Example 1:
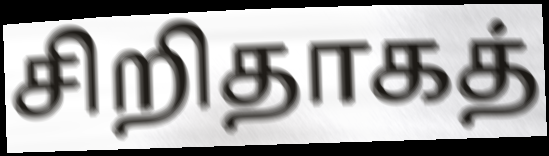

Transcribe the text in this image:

சிறிதாகத்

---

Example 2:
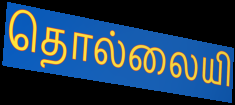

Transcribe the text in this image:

தொல்லையி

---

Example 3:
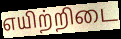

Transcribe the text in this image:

எயிற்றிடை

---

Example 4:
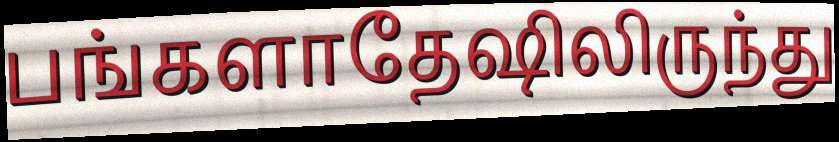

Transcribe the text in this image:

பங்களாதேஷிலிருந்து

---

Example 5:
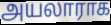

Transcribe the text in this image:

அயலாராக